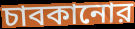
চাবকানোর